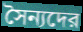
সৈন্যদের